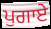
ਪੁਗਾਏ